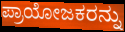
ಪ್ರಾಯೋಜಕರನ್ನು